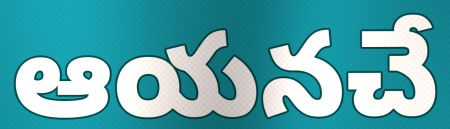
ఆయనచే